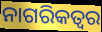
ନାଗରିକତ୍ୱର